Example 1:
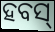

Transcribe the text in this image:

ହବସ୍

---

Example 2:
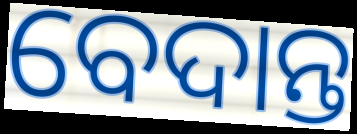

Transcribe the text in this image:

ବେଦାନ୍ତ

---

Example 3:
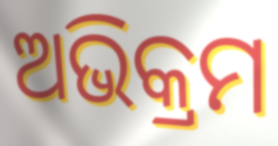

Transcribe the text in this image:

ଅଭିକ୍ରମ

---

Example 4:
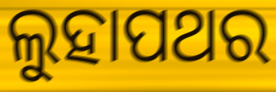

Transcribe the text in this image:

ଲୁହାପଥର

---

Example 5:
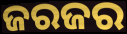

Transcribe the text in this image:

ଜରଜର